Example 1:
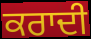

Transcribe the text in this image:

ਕਰਾਦੀ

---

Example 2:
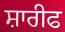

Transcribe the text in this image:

ਸ਼ਾਰੀਫ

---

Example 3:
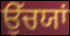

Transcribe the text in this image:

ਉੱਚਯਾਂ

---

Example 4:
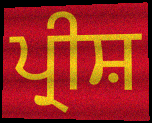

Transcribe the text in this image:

ਪ੍ਰੀਸ਼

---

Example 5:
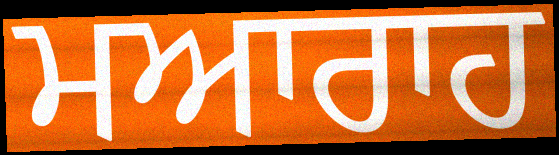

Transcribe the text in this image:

ਮਆਰਾਹ